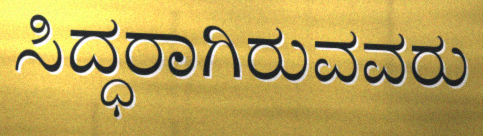
ಸಿದ್ಧರಾಗಿರುವವರು